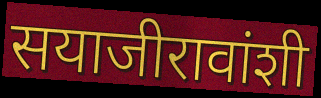
सयाजीरावांशी